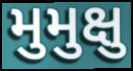
મુમુક્ષુ